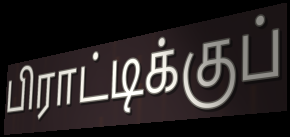
பிராட்டிக்குப்